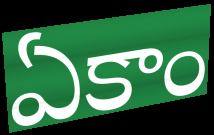
ఏకాం